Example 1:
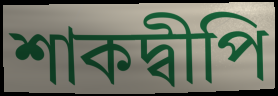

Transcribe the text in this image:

শাকদ্বীপি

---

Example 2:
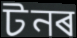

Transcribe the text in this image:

টনৰ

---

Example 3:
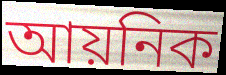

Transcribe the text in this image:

আয়নিক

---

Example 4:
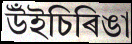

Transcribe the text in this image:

উঁইচিৰিঙা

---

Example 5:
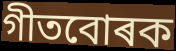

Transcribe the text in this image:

গীতবোৰক